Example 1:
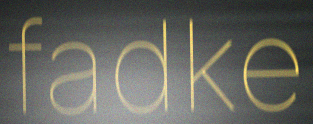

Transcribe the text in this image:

fadke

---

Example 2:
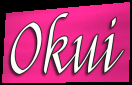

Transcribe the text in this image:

Okui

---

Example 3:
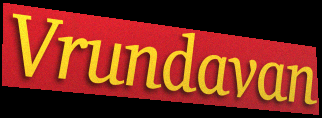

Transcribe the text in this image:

Vrundavan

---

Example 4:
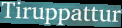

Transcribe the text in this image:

Tiruppattur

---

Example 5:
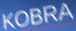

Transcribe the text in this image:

KOBRA